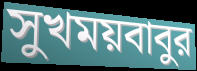
সুখময়বাবুর